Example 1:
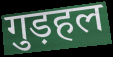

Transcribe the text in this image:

गुड़हल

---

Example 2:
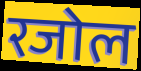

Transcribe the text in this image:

रजोल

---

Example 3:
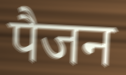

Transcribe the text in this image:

पैजन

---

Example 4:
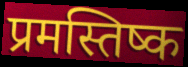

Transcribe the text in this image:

प्रमस्तिष्क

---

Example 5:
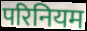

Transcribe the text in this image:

परिनियम